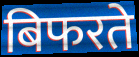
बिफरते